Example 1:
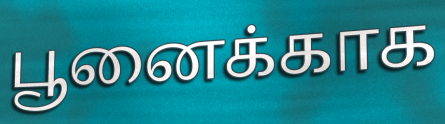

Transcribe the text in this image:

பூனைக்காக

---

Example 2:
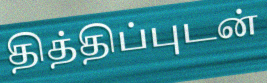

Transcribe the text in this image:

தித்திப்புடன்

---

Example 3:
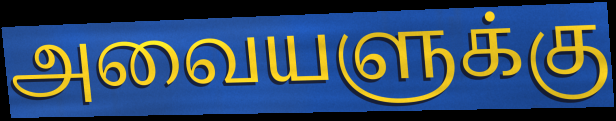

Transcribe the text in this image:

அவையளுக்கு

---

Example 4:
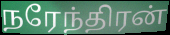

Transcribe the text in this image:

நரேந்திரன்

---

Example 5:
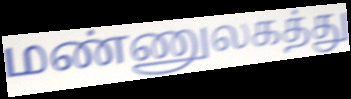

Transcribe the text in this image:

மண்ணுலகத்து